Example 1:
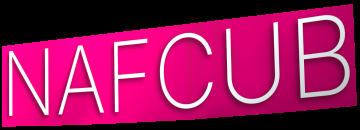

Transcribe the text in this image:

NAFCUB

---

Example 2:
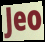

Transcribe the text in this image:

Jeo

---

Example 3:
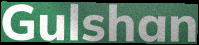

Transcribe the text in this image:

Gulshan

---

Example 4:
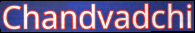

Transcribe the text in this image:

Chandvadchi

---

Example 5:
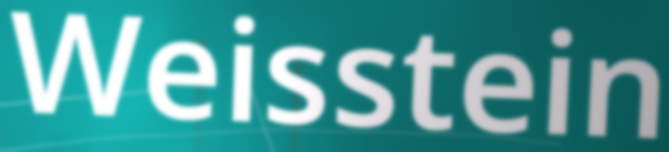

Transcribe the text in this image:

Weisstein